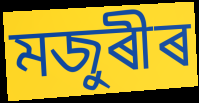
মজুৰীৰ